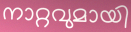
നാറ്റവുമായി